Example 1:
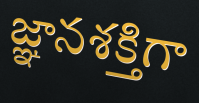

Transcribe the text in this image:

జ్ఞానశక్తిగా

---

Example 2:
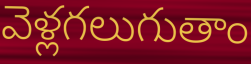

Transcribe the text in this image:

వెళ్లగలుగుతాం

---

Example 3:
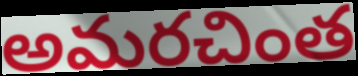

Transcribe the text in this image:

అమరచింత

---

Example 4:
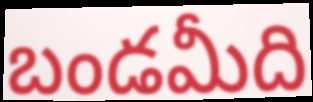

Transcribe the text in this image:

బండమీది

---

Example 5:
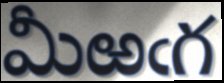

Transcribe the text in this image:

మీఱఁగ